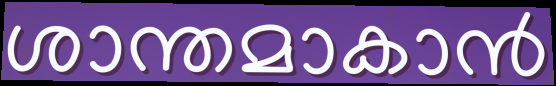
ശാന്തമാകാൻ